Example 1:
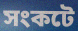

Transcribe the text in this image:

সংকটে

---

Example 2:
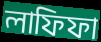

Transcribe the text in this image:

লাফিফা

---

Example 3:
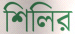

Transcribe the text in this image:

শিলির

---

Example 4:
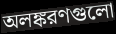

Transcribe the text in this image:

অলঙ্করণগুলো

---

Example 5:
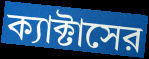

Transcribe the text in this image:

ক্যাক্টাসের